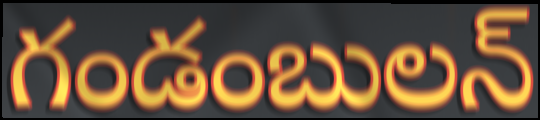
గండంబులన్